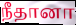
நீதானா